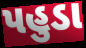
પહુડા